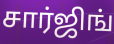
சார்ஜிங்